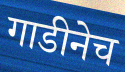
गाडीनेच